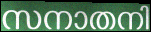
സനാതനി